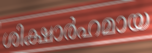
ശിക്ഷാർഹമായ